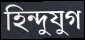
হিন্দুযুগ